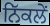
ਨਿੱਕਲੇਂ